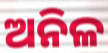
ଅନିଳ